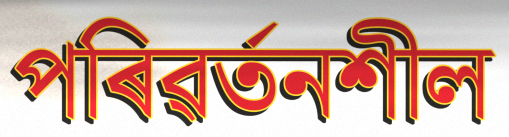
পৰিৱৰ্তনশীল